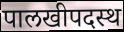
पालखीपदस्थ